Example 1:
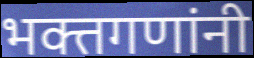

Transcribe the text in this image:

भक्तगणांनी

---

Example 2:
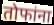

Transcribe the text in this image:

तोफांना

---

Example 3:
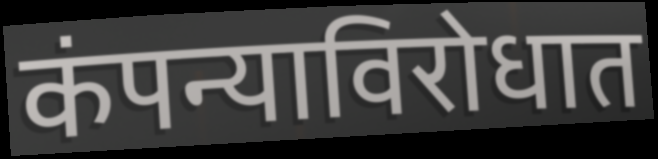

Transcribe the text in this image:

कंपन्याविरोधात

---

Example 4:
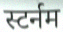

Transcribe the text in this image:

स्टर्नम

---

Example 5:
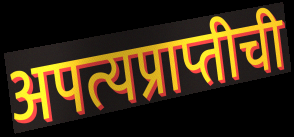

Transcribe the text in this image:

अपत्यप्राप्तीची